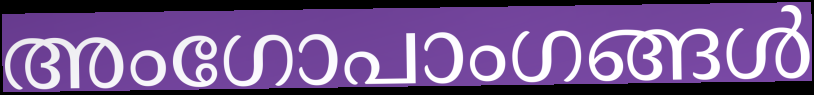
അംഗോപാംഗങ്ങൾ